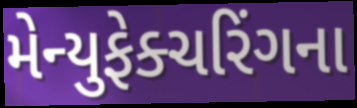
મેન્યુફેક્ચરિંગના